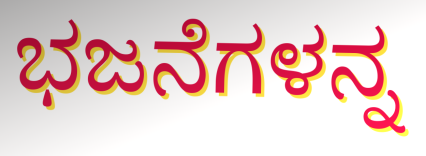
ಭಜನೆಗಳನ್ನ